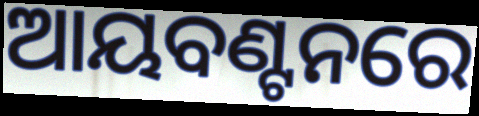
ଆୟବଣ୍ଟନରେ